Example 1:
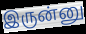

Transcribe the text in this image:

இருன்னு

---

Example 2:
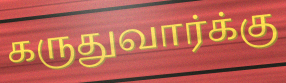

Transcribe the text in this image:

கருதுவார்க்கு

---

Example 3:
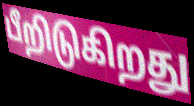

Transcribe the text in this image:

பீறிடுகிறது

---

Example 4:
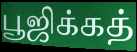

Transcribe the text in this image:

பூஜிக்கத்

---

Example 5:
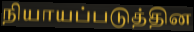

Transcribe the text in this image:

நியாயப்படுத்தின